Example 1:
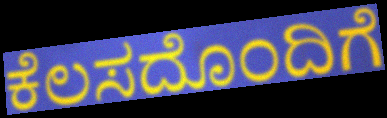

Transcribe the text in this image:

ಕೆಲಸದೊಂದಿಗೆ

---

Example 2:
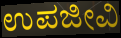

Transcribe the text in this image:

ಉಪಜೀವಿ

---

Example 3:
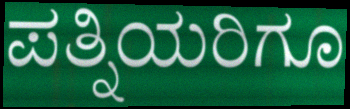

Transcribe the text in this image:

ಪತ್ನಿಯರಿಗೂ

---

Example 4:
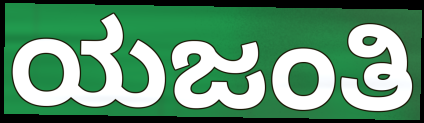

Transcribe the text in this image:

ಯಜಂತಿ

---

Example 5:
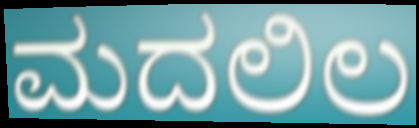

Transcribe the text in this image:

ಮದಲಿಲ